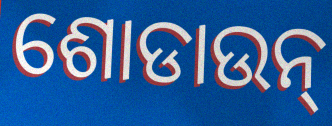
ଶୋଡାଉନ୍